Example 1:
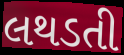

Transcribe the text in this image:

લથડતી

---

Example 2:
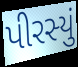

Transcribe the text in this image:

પીરસ્યું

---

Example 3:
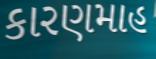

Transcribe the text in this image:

કારણમાહ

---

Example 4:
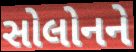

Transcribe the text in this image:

સોલોનને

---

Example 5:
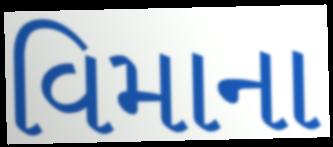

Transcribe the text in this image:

વિમાના